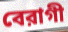
বেরাগী